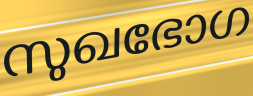
സുഖഭോഗ